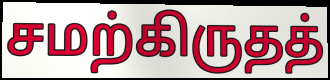
சமற்கிருதத்